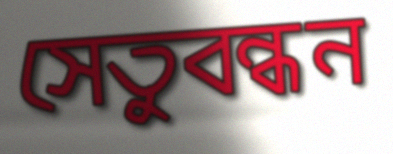
সেতুবন্ধন